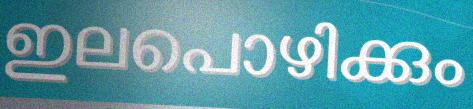
ഇലപൊഴിക്കും